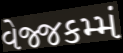
વેજ્જકમ્મં